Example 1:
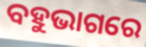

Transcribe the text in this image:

ବହୁଭାଗରେ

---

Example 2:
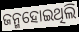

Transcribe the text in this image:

ଜନ୍ମହୋଇଥିଲି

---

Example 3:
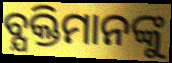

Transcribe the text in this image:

ବ୍ଯକ୍ତିମାନଙ୍କୁ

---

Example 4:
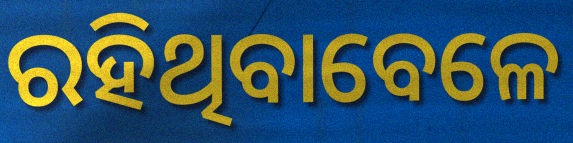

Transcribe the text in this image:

ରହିଥିବାବେଳେ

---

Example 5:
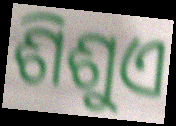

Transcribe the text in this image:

ଶିଶୁଏ